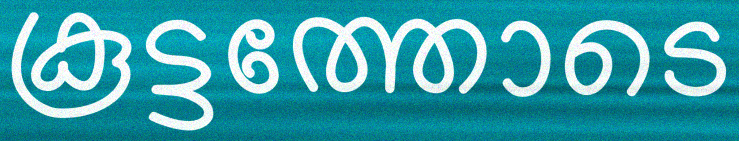
കൂട്ടത്തോടെ